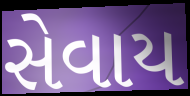
સેવાય